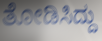
ತೋಡಿಸಿದ್ದು